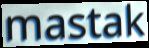
mastak